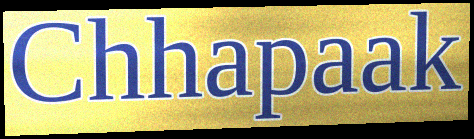
Chhapaak